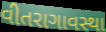
વીતરાગાવસ્થા